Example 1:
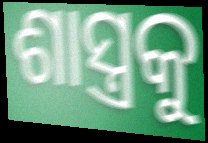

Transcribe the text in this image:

ଶାସ୍ତ୍ରକୁ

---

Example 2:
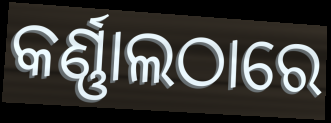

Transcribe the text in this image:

କର୍ଣ୍ଣାଲଠାରେ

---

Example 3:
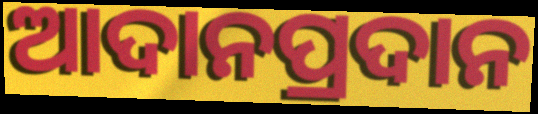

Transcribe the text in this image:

ଆଦାନପ୍ରଦାନ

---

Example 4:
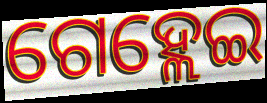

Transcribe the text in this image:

ଗେହ୍ଲେଇ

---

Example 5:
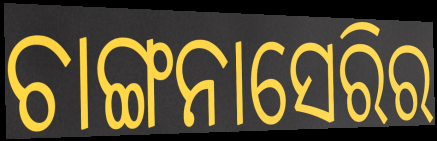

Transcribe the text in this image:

ଚାଙ୍ଗନାସେରିର